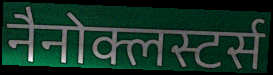
नैनोक्लस्टर्स